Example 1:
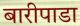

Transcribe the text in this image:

बारीपाडा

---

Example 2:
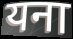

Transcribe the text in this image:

यना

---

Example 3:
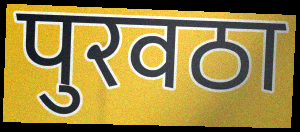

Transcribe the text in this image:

पुरवठा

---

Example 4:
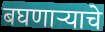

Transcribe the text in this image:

बघणाऱ्याचे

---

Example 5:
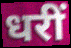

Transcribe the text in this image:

धरीं